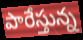
పారేస్తున్న